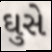
ઘુસે